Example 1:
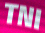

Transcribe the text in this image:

TNI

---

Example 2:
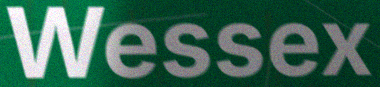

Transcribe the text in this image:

Wessex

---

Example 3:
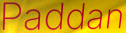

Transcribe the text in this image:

Paddan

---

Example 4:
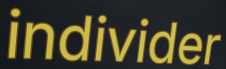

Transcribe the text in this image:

individer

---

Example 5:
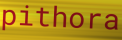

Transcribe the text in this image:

pithora